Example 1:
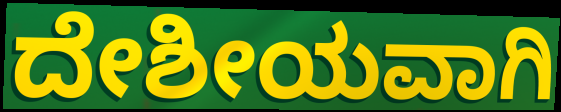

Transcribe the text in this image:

ದೇಶೀಯವಾಗಿ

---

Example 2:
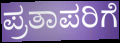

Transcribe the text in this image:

ಪ್ರತಾಪರಿಗೆ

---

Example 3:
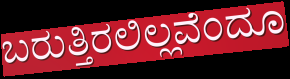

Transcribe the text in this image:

ಬರುತ್ತಿರಲಿಲ್ಲವೆಂದೂ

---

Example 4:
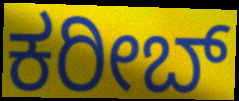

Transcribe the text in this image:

ಕರೀಬ್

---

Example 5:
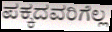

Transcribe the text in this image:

ಪಕ್ಕದವರಿಗೆಲ್ಲ